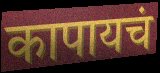
कापायचं